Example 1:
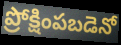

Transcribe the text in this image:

ప్రోక్షింపబడెనో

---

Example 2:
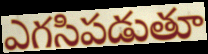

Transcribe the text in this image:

ఎగసిపడుతూ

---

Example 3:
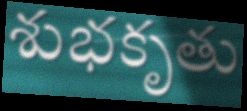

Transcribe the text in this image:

శుభకృతు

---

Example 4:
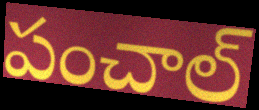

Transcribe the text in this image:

పంచాల్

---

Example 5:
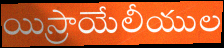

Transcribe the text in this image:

యిస్రాయేలీయుల